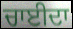
ਚਾਈਦਾ